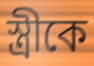
স্ত্রীকে